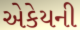
એકેયની